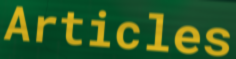
Articles